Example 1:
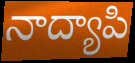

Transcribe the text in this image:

నాద్యాపి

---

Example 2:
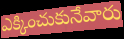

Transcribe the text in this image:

ఎక్కించుకునేవారు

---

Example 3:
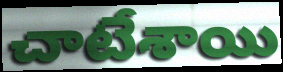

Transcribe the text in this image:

చాటేశాయి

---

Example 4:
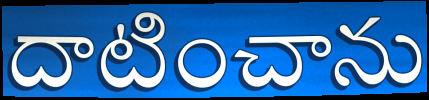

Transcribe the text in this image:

దాటించాను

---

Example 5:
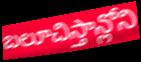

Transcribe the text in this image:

బలూచిస్తాన్లోని